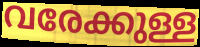
വരേക്കുള്ള